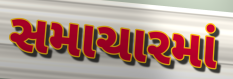
સમાચારમાં